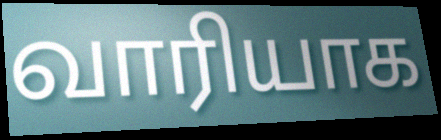
வாரியாக